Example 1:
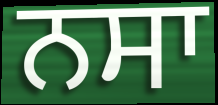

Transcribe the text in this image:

ਨਸਾ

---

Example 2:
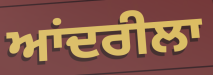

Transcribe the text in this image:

ਆਂਦਰੀਲਾ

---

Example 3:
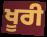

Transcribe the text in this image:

ਖੂਰੀ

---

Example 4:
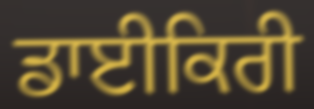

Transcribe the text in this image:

ਡਾਈਕਿਰੀ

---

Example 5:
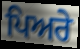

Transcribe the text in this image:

ਪਿਅਰੇ